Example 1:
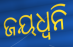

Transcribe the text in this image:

ଜୟଧ୍ଵନି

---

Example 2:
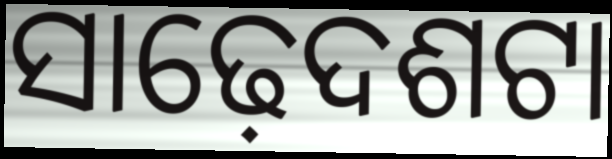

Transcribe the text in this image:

ସାଢ଼େଦଶଟା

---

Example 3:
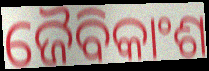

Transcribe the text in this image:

ଜୈବିକାଂଶ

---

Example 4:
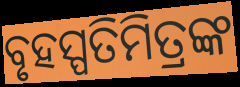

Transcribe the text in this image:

ବୃହସ୍ପତିମିତ୍ରଙ୍କ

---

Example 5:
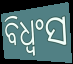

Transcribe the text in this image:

ବିଧ୍ଵଂସ